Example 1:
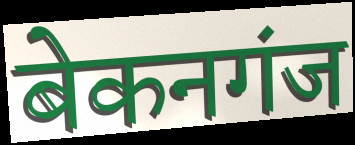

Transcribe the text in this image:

बेकनगंज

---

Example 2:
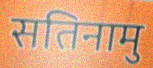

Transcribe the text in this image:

सतिनामु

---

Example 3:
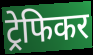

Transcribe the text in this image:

ट्रेफिकर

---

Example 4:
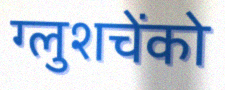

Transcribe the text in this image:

ग्लुशचेंको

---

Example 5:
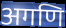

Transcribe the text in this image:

अगणि